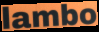
lambo